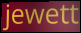
jewett